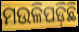
ମଉଳିପଡ଼ିଛି